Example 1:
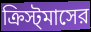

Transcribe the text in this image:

ক্রিস্ট্‌মাসের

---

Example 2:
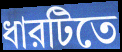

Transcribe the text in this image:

ধারটিতে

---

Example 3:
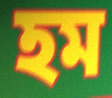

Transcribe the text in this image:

হম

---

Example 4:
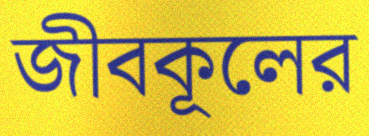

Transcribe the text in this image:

জীবকূলের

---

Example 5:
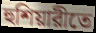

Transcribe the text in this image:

হুশিয়ারীতে